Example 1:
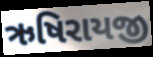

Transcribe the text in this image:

ઋષિરાયજી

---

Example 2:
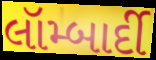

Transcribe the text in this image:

લૉમ્બાર્દી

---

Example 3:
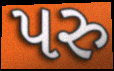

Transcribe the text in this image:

પરુ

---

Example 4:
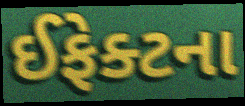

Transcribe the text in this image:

ઈફેક્ટના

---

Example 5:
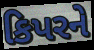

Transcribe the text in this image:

કિપરને